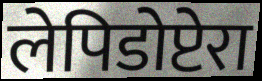
लेपिडोप्टेरा